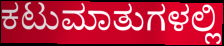
ಕಟುಮಾತುಗಳಲ್ಲಿ